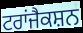
ਟਰਾਂਜੈਕਸ਼ਨ